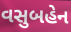
વસુબહેન